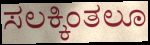
ಸಲಕ್ಕಿಂತಲೂ